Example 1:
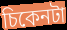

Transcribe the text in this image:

চিকেনটা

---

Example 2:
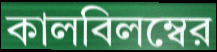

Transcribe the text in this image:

কালবিলম্বের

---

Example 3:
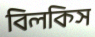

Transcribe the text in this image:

বিলকিস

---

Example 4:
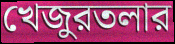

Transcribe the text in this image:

খেজুরতলার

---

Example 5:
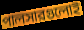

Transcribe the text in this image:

পালসারগুলোই